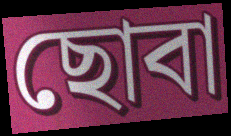
ছোবা